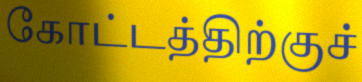
கோட்டத்திற்குச்